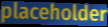
placeholder